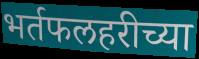
भर्तफलहरीच्या